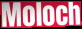
Moloch